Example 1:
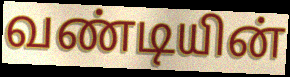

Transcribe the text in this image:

வண்டியின்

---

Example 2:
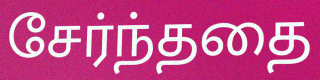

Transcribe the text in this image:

சேர்ந்ததை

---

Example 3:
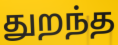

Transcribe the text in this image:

துறந்த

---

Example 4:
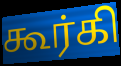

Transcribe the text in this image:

கூர்கி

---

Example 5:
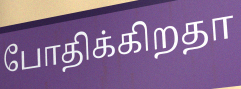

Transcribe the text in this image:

போதிக்கிறதா